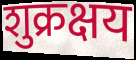
शुक्रक्षय